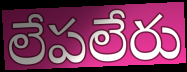
లేపలేరు